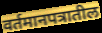
वर्तमानपत्रातील